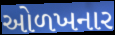
ઓળખનાર